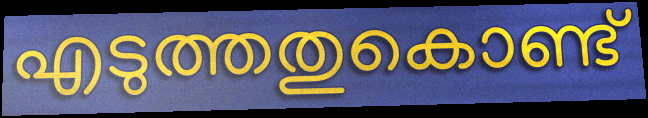
എടുത്തതുകൊണ്ട്